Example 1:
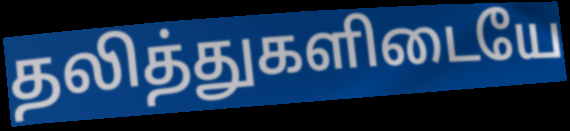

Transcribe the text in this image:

தலித்துகளிடையே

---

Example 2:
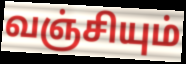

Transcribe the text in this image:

வஞ்சியும்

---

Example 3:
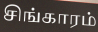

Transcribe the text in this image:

சிங்காரம்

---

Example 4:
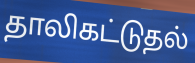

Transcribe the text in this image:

தாலிகட்டுதல்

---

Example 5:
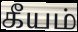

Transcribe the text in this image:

கீயம்